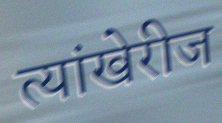
त्यांखेरीज